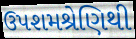
ઉપશમશ્રેણિથી